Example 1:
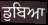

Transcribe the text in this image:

ਡੁਬਿਆ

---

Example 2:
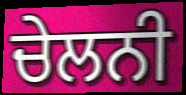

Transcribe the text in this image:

ਚੇਲਨੀ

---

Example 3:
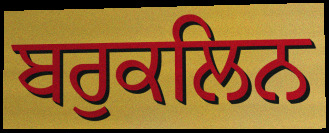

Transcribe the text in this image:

ਬਰੁਕਲਿਨ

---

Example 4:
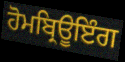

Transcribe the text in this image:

ਹੋਮਬ੍ਰਿਊਇੰਗ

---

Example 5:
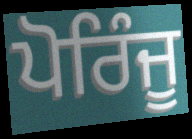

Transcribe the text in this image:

ਪੋਰਿੰਜੂ